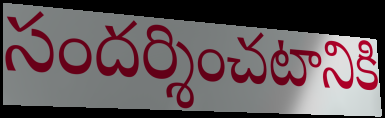
సందర్శించటానికి